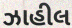
ઝાહીલ